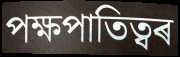
পক্ষপাতিত্বৰ